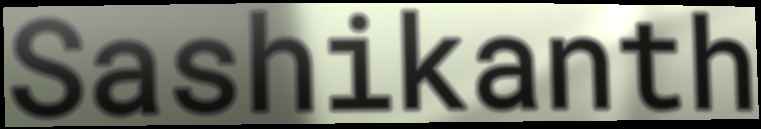
Sashikanth